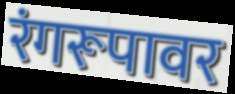
रंगरूपावर